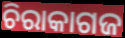
ଚିରାକାଗଜ